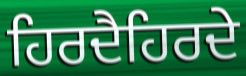
ਹਿਰਦੈਹਿਰਦੇ